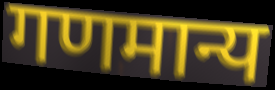
गणमान्य